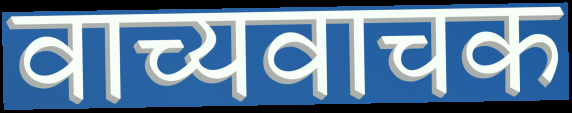
वाच्यवाचक